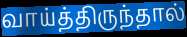
வாய்த்திருந்தால்